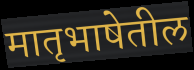
मातृभाषेतील